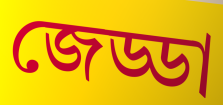
জেড্ডা